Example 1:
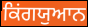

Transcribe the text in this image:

ਕਿਂਗਯੁਆਨ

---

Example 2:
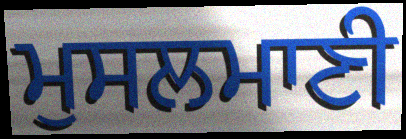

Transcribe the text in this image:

ਮੁਸਲਮਾਣੀ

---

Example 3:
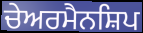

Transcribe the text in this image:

ਚੇਅਰਮੈਨਸ਼ਿਪ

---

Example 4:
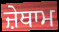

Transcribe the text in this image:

ਜ਼ੇਥਾਮ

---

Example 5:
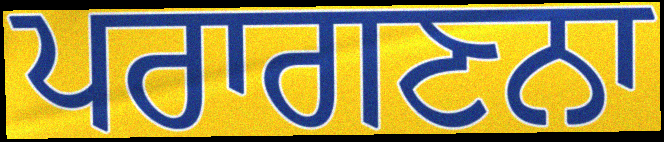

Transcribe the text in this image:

ਪਰਾਗਣਨਾ